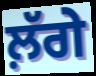
ਲ਼ੱਗੇ